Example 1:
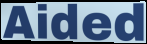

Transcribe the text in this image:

Aided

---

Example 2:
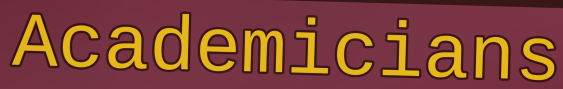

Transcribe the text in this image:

Academicians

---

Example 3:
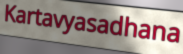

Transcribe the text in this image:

Kartavyasadhana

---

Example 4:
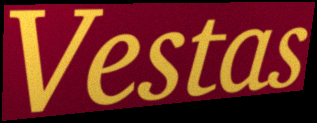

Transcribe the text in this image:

Vestas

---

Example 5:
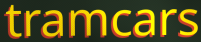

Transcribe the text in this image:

tramcars